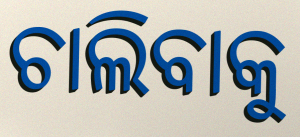
ଚାଲିବାକୁ